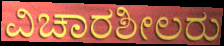
ವಿಚಾರಶೀಲರು